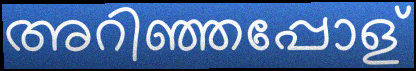
അറിഞ്ഞപ്പോള്